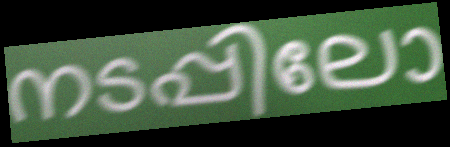
നടപ്പിലോ